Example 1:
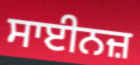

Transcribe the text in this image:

ਸਾਈਨਜ਼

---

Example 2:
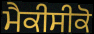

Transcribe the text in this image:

ਮੈਕੀਸੀਕੋ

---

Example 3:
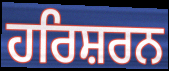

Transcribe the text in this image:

ਹਰਿਸ਼ਰਨ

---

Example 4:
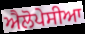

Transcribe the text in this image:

ਐਲੋਪੇਸੀਆ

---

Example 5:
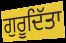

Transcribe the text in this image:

ਗੁਰੂਦਿੱਤਾ